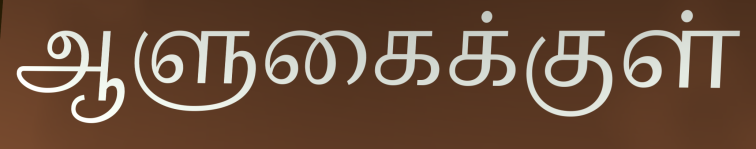
ஆளுகைக்குள்